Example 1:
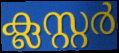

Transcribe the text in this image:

ക്ലസ്റ്റർ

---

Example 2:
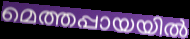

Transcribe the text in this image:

മെത്തപ്പായയിൽ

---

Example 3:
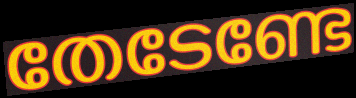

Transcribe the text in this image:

തേടേണ്ടേ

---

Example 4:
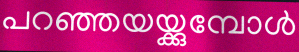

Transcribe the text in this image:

പറഞ്ഞയയ്ക്കുമ്പോൾ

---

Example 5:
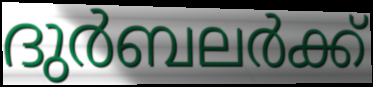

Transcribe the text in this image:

ദുർബലർക്ക്